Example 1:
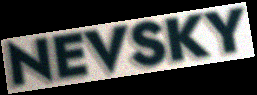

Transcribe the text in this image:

NEVSKY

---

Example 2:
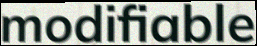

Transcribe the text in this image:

modifiable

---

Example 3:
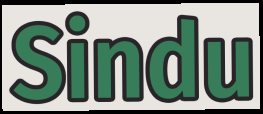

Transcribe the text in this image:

Sindu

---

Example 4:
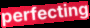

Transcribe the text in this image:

perfecting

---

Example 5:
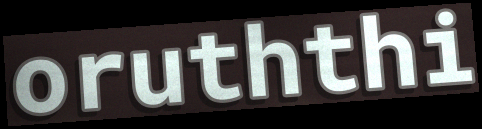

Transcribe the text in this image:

oruththi